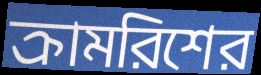
ক্রামরিশের